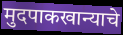
मुदपाकखान्याचे